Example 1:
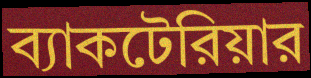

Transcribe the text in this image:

ব্যাকটেরিয়ার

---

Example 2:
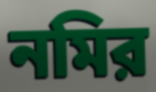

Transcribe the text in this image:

নমির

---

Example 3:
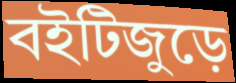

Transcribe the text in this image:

বইটিজুড়ে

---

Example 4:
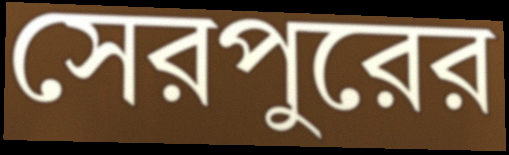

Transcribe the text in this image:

সেরপুরের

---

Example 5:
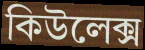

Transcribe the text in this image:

কিউলেক্স